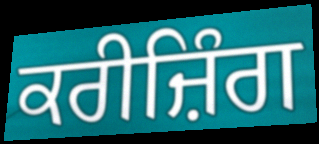
ਕਰੀਜ਼ਿੰਗ